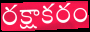
రక్షాకరం